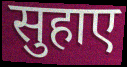
सुहाए